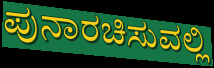
ಪುನಾರಚಿಸುವಲ್ಲಿ